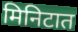
मिनिटात